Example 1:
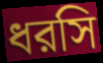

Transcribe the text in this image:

ধরসি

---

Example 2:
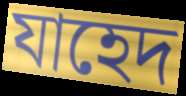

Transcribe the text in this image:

যাহেদ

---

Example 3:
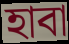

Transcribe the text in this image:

হাবা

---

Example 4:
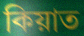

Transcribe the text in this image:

কিয়াত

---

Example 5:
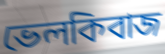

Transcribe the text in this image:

ভেলকিবাজ